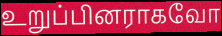
உறுப்பினராகவோ